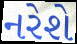
નરેશે